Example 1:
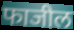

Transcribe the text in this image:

फाजील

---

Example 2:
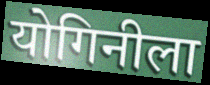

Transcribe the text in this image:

योगिनीला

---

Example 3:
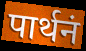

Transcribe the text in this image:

पार्थनं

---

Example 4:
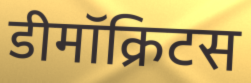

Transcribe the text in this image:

डीमॉक्रिटस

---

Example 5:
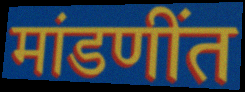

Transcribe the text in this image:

मांडणींत